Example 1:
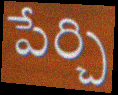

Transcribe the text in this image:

పేర్చి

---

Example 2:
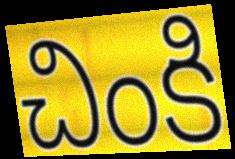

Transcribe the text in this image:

చింకి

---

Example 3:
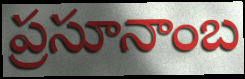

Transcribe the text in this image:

ప్రసూనాంబ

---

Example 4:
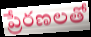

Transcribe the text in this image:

ప్రేరణలతో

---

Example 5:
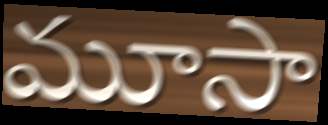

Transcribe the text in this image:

మూసా